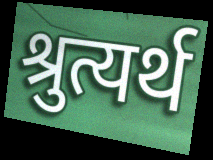
श्रुत्यर्थ